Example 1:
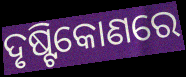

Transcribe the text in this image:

ଦୃଷ୍ଟିକୋଣରେ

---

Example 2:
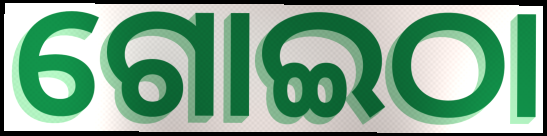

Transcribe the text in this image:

ଗୋଇଠା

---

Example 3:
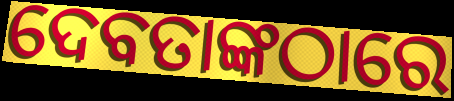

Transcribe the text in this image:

ଦେବତାଙ୍କଠାରେ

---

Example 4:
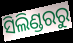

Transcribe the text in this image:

ସିଲିଣ୍ଡରରୁ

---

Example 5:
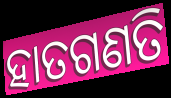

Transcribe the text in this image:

ହାତଗଣତି